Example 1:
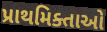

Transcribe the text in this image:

પ્રાથમિક્તાઓ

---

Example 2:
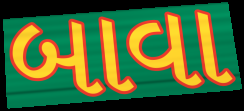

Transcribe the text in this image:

બાવા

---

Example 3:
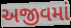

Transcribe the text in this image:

અજીવમાં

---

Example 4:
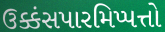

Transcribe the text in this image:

ઉક્કંસપારમિપ્પત્તો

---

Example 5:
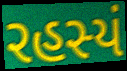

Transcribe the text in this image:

રહસ્યં